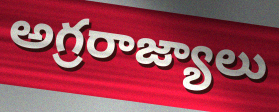
అగ్రరాజ్యాలు